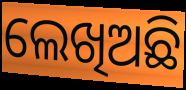
ଲେଖିଅଛି